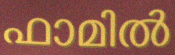
ഫാമിൽ